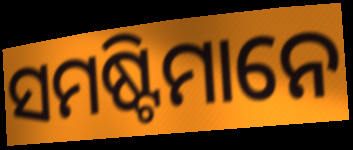
ସମଷ୍ଟିମାନେ